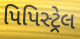
પિપિસ્ટ્રેલ